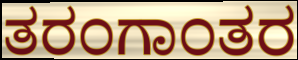
ತರಂಗಾಂತರ